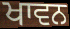
ਖਾਵਨ